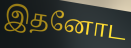
இதனோட